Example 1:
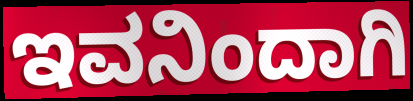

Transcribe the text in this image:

ಇವನಿಂದಾಗಿ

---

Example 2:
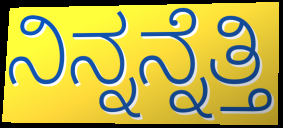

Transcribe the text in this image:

ನಿನ್ನನ್ನೆತ್ತಿ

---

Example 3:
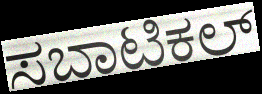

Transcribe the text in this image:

ಸಬಾಟಿಕಲ್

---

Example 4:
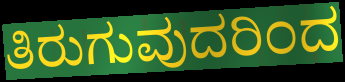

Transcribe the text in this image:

ತಿರುಗುವುದರಿಂದ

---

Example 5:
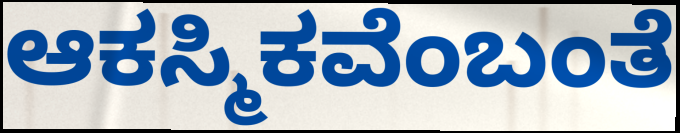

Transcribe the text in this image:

ಆಕಸ್ಮಿಕವೆಂಬಂತೆ